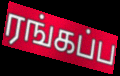
ரங்கப்ப